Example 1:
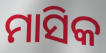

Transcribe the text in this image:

ମାସିକ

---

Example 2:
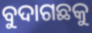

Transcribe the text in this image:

ବୁଦାଗଛକୁ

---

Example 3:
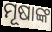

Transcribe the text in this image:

ମୂଷାଙ୍କ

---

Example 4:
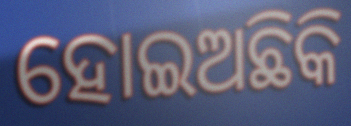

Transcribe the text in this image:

ହୋଇଅଛିକି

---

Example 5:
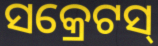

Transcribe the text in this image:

ସକ୍ରେଟସ୍